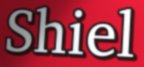
Shiel